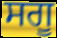
ਸਗੂ